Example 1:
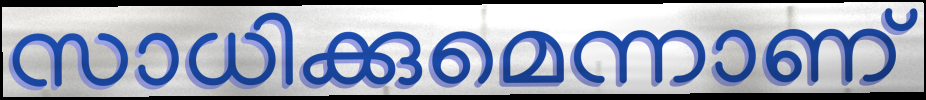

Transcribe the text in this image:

സാധിക്കുമെന്നാണ്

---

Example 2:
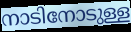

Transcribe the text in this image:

നാടിനോടുള്ള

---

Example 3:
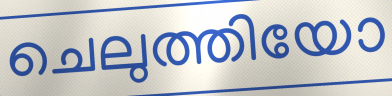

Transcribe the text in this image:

ചെലുത്തിയോ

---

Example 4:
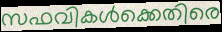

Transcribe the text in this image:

സഫവികൾക്കെതിരെ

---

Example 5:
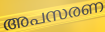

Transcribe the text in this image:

അപസരണ